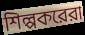
শিল্পকরেরা